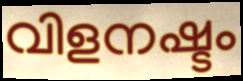
വിളനഷ്ടം